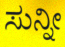
ಸುನ್ನೀ